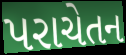
પરાચેતન